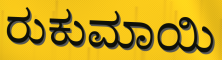
ರುಕುಮಾಯಿ